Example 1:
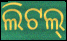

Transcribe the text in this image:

ଲିଟଲ୍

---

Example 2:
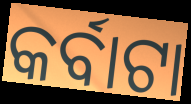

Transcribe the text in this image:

କର୍ବାଟା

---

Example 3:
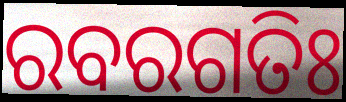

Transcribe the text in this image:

ରବରଗତିଃ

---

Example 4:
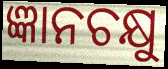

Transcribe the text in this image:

ଜ୍ଞାନଚକ୍ଷୁ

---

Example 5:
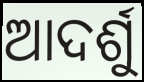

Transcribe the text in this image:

ଆଦର୍ଶୁ